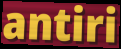
antiri